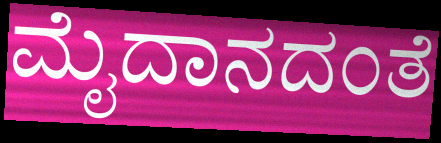
ಮೈದಾನದಂತೆ